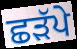
ਛੜੱਪੇ